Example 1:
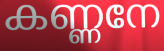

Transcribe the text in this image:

കണ്ണനേ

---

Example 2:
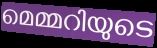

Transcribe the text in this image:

മെമ്മറിയുടെ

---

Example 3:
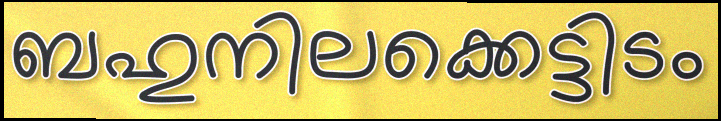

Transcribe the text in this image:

ബഹുനിലക്കെട്ടിടം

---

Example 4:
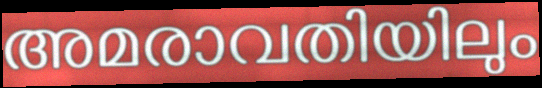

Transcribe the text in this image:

അമരാവതിയിലും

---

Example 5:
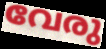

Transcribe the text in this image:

വേരു